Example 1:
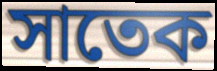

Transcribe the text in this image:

সাতেক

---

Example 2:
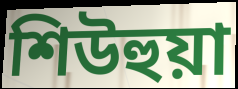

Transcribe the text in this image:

শিউহুয়া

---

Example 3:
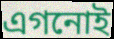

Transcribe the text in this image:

এগনোই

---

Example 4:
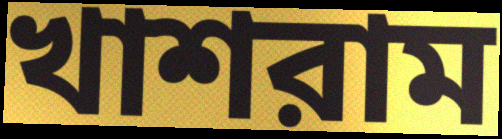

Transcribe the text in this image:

খাশরাম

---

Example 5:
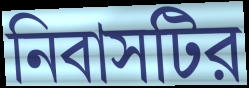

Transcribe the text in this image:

নিবাসটির